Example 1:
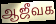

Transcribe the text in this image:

ஆஜீவக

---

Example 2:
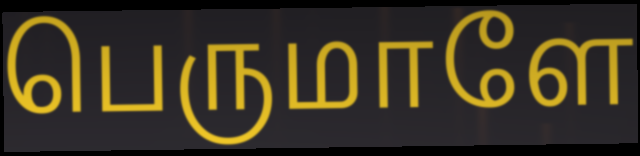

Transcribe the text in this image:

பெருமாளே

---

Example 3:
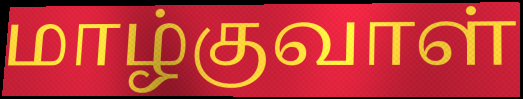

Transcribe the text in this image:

மாழ்குவாள்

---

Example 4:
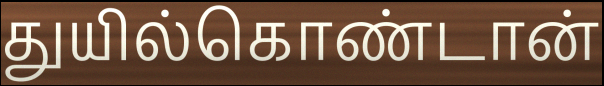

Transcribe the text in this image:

துயில்கொண்டான்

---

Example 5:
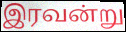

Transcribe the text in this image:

இரவன்று